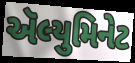
ઍલ્યુમિનેટ